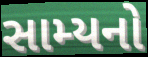
સામ્યનો